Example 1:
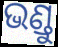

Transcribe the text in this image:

ଭଣ୍ଡୁ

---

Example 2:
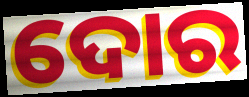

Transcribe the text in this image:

ଦୋର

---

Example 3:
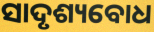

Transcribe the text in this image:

ସାଦୃଶ୍ୟବୋଧ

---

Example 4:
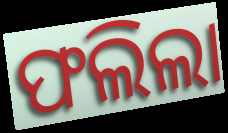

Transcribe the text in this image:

ଫଲିଲା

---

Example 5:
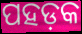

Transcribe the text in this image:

ପହଡ଼କ